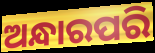
ଅନ୍ଧାରପରି